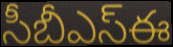
సీబీఎస్ఈ